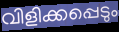
വിളിക്കപ്പെടും